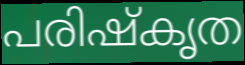
പരിഷ്കൃത